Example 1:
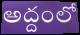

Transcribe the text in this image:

అద్దంలో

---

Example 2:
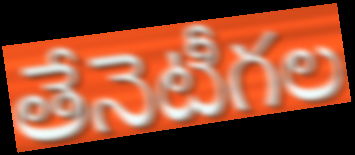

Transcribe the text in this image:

తేనెటీగల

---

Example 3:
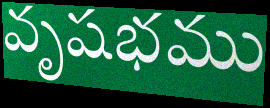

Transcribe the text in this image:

వృషభము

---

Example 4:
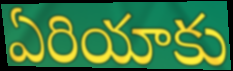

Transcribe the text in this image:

ఏరియాకు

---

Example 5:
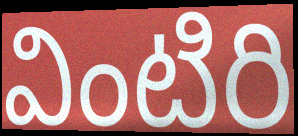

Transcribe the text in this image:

వింటిరి